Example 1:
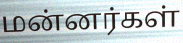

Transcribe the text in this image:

மன்னர்கள்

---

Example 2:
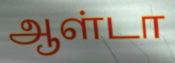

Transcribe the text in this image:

ஆள்டா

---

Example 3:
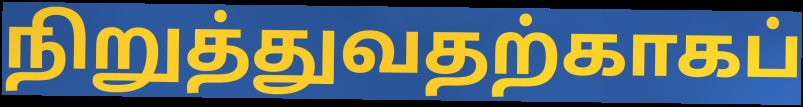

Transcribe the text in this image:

நிறுத்துவதற்காகப்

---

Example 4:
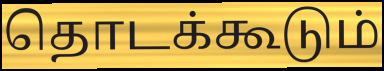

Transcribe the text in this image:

தொடக்கூடும்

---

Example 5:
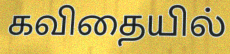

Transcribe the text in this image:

கவிதையில்